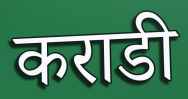
कराडी